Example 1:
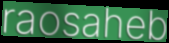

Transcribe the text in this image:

raosaheb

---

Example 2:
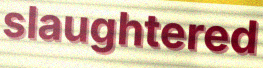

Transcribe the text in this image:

slaughtered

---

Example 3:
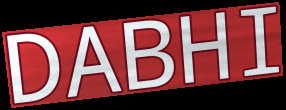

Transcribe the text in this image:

DABHI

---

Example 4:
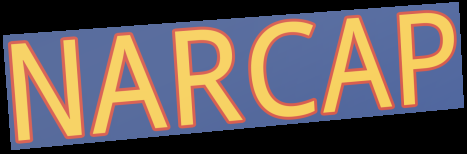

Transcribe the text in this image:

NARCAP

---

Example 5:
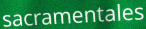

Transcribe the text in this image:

sacramentales